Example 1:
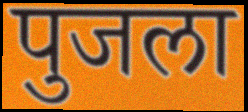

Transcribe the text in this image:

पुजला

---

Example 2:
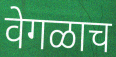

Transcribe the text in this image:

वेगळाच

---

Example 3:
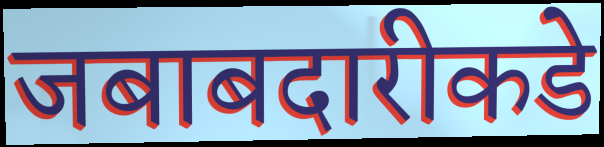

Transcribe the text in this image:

जबाबदारीकडे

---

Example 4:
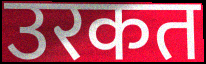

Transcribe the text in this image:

उरकत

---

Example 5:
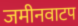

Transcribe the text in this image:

जमीनवाटप